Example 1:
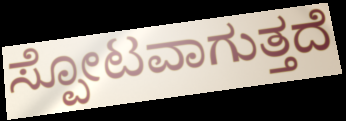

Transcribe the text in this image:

ಸ್ಪೋಟವಾಗುತ್ತದೆ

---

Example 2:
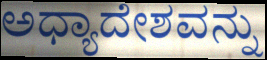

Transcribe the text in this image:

ಅಧ್ಯಾದೇಶವನ್ನು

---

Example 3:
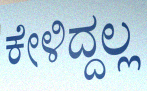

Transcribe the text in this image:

ಕೇಳಿದ್ದಲ್ಲ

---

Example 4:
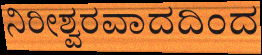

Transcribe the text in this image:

ನಿರೀಶ್ವರವಾದದಿಂದ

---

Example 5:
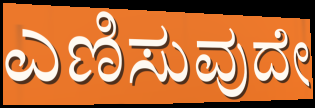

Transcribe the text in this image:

ಎಣಿಸುವುದೇ